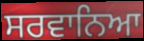
ਸਰਵਾਨਿਆ